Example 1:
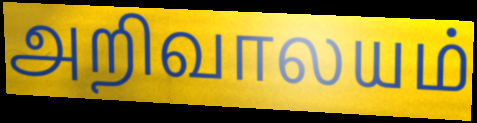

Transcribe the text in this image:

அறிவாலயம்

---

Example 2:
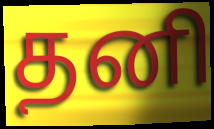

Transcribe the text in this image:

தனி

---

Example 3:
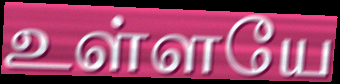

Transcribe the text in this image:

உள்ளயே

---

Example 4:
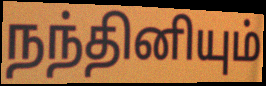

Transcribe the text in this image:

நந்தினியும்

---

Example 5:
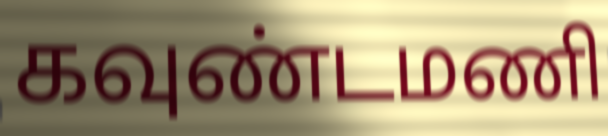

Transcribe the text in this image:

கவுண்டமணி